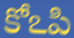
కోఽపి